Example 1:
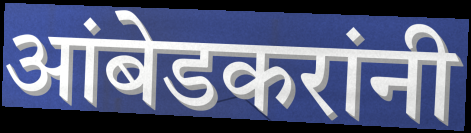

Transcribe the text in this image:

आंबेडकरांनी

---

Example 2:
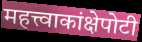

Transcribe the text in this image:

महत्त्वाकांक्षेपोटी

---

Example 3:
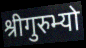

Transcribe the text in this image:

श्रीगुरुभ्यो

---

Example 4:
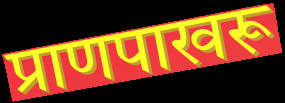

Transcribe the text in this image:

प्राणपाखरू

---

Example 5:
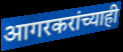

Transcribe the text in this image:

आगरकरांच्याही